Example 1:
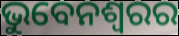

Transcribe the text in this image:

ଭୁବେନଶ୍ବରର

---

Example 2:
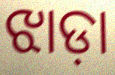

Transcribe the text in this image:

ଝାଡ଼ା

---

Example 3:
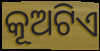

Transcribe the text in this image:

କୂଅଟିଏ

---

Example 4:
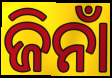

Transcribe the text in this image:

ଜିନାଁ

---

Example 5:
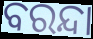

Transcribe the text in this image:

ବରନ୍ଦା